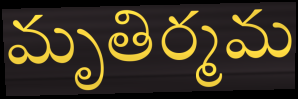
మృతిర్మమ